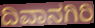
ದಿವಾನಗಿರಿ